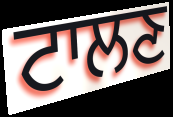
ਟਾਲਣ